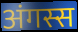
अंगस्स